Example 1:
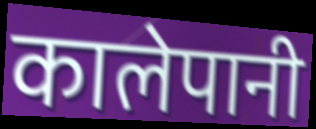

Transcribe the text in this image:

कालेपानी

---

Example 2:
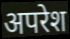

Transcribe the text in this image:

अपरेश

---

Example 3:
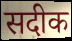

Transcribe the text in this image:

सदीक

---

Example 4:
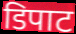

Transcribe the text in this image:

डिपाट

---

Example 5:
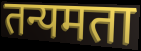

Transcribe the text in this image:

तन्यमता